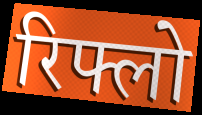
रिफ्लो